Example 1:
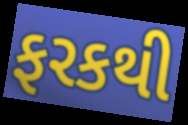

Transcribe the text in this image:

ફરકથી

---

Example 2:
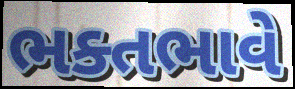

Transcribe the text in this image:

ભક્તભાવે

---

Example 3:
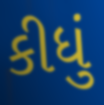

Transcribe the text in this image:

કીધું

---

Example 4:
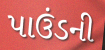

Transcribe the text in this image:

પાઉંડની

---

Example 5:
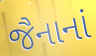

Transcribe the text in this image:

જૈનાનાં